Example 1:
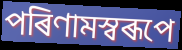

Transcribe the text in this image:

পৰিণামস্বৰূপে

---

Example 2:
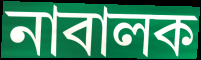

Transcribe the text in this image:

নাবালক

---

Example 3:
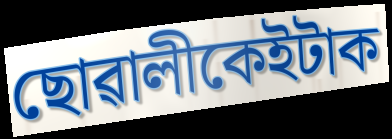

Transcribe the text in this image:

ছোৱালীকেইটাক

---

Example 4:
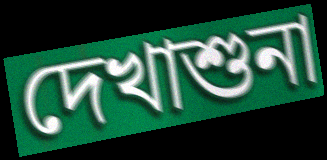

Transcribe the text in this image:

দেখাশুনা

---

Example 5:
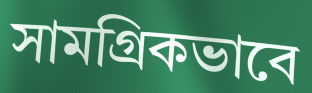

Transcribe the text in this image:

সামগ্ৰিকভাবে